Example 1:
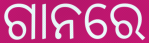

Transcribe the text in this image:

ଗାନରେ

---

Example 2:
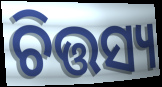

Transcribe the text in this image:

ଚିତ୍ତସ୍ୟ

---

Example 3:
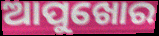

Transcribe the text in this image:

ଆପୁଖୋର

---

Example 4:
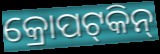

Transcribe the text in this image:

କ୍ରୋପଟ୍‍କିନ୍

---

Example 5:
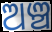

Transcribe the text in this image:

ଅଞ୍ଚ